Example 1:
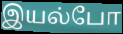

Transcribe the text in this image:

இயல்போ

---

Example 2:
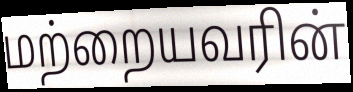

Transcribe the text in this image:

மற்றையவரின்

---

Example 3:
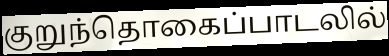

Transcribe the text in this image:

குறுந்தொகைப்பாடலில்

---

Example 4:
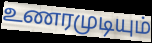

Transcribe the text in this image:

உணரமுடியும்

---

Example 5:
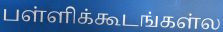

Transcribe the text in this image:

பள்ளிக்கூடங்கள்ல